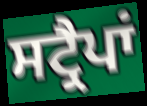
ਸਟ੍ਰੈਪਾਂ